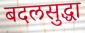
बदलसुद्धा